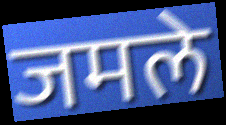
जमले